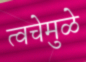
त्वचेमुळे